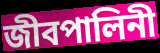
জীবপালিনী